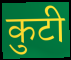
कुटी